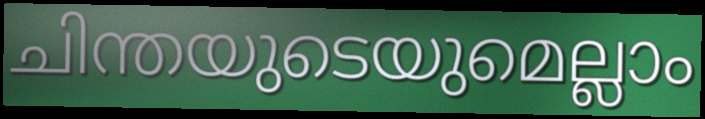
ചിന്തയുടെയുമെല്ലാം